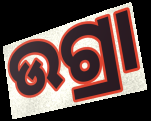
ଉଗ୍ରା